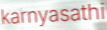
karnyasathi